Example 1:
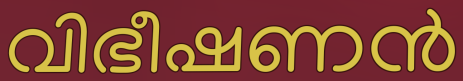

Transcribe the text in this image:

വിഭീഷണൻ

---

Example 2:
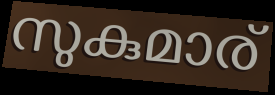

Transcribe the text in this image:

സുകുമാര്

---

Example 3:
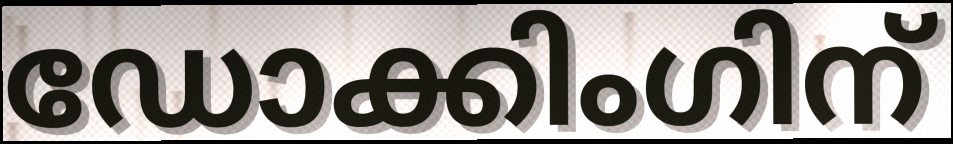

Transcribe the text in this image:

ഡോക്കിംഗിന്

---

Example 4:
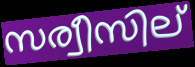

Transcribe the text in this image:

സര്വീസില്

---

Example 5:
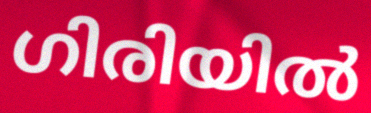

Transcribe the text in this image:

ഗിരിയിൽ